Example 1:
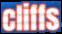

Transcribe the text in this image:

cliffs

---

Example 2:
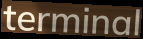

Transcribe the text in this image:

terminal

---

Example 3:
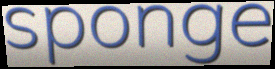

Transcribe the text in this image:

sponge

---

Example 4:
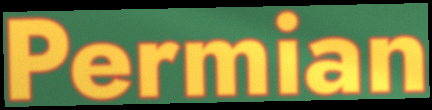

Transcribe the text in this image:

Permian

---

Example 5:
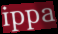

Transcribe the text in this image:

ippa